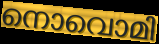
നൊവൊമി